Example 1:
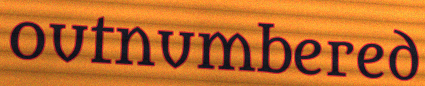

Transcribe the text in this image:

outnumbered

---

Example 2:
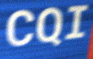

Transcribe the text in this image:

CQI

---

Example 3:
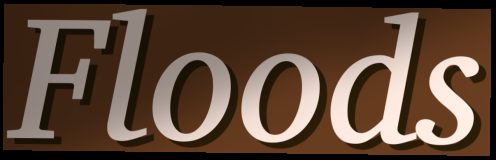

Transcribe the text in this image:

Floods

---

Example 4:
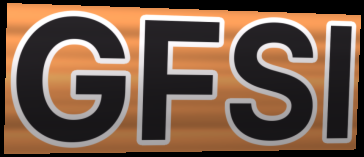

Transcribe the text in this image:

GFSI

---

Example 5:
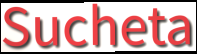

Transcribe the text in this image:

Sucheta